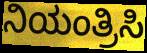
ನಿಯಂತ್ರಿಸಿ